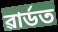
ৱাৰ্ডত